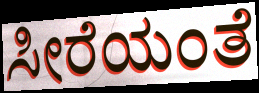
ಸೀರೆಯಂತೆ